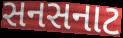
સનસનાટ